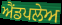
ਐਂਡਪਲੇਅ